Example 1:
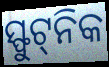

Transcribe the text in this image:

ସ୍ଫୁଟ୍‌ନିକ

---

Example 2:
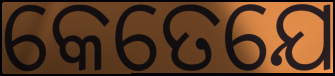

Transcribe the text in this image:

କେତେଯେ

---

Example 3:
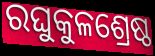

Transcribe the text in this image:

ରଘୁକୁଳଶ୍ରେଷ୍ଠ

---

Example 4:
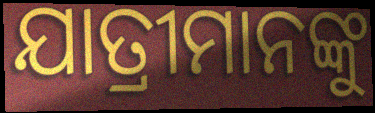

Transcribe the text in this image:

ଯାତ୍ରୀମାନଙ୍କୁ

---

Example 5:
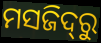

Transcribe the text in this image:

ମସଜିଦ୍‌ରୁ